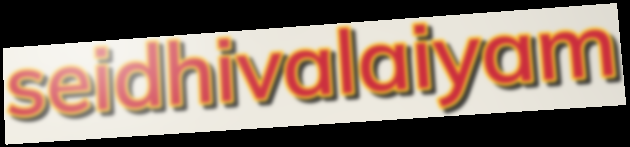
seidhivalaiyam